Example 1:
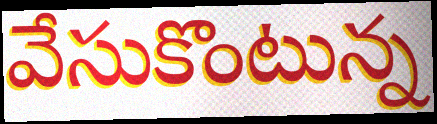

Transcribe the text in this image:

వేసుకొంటున్న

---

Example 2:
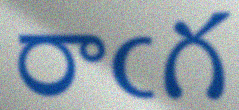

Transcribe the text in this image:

రాఁగ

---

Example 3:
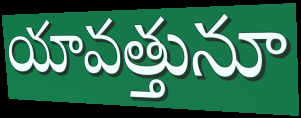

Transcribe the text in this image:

యావత్తునూ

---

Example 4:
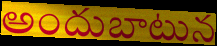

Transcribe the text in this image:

అందుబాటున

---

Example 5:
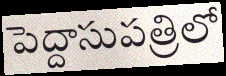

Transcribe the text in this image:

పెద్దాసుపత్రిలో